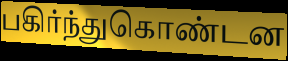
பகிர்ந்துகொண்டன